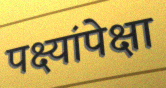
पक्ष्यांपेक्षा